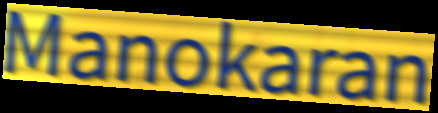
Manokaran